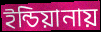
ইন্ডিয়ানায়